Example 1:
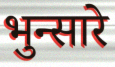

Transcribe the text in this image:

भुन्सारे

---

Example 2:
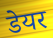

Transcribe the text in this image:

डेयर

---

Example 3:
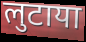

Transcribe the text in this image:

लुटाया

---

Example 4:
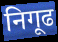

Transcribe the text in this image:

निगूढ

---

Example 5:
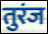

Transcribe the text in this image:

तुरंज